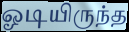
ஓடியிருந்த